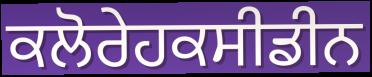
ਕਲੋਰੇਹਕਸੀਡੀਨ